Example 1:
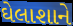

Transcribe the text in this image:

ઘેલાશાને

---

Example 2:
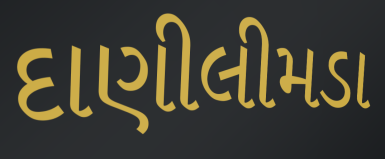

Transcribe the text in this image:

દાણીલીમડા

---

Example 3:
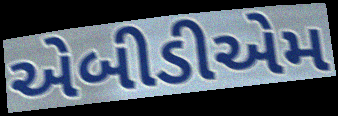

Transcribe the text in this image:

એબીડીએમ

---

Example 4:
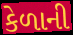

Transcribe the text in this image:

કેળાની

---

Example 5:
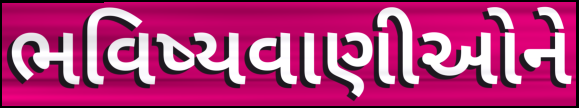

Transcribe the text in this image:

ભવિષ્યવાણીઓને